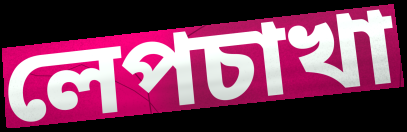
লেপচাখা